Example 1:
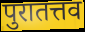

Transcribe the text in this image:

पुरातत्तव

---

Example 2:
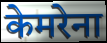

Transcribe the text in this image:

केमरेना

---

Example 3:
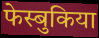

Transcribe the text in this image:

फेस्बुकिया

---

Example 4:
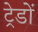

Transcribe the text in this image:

ट्रेडों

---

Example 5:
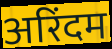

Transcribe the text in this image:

अरिंदम